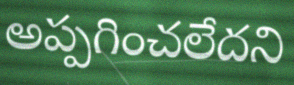
అప్పగించలేదని